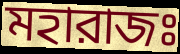
মহারাজঃ